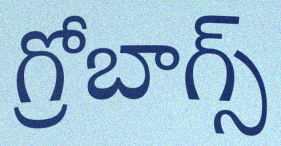
గ్రోబాగ్స్